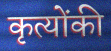
कृत्योंकी